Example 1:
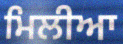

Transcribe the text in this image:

ਮਿਲੀਆ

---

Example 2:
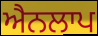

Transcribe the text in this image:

ਐਨਲਾਪ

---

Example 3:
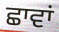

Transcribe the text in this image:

ਛਾਵਾਂ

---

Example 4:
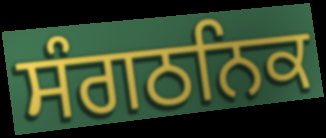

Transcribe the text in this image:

ਸੰਗਠਨਿਕ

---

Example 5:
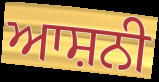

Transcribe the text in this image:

ਆਸ਼ਨੀ